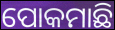
ପୋକମାଛି